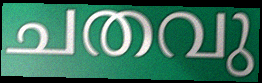
ചതവു